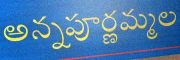
అన్నపూర్ణమ్మల